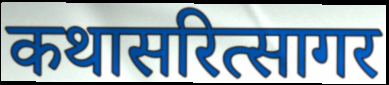
कथासरित्सागर